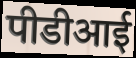
पीडीआई